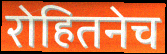
रोहितनेच